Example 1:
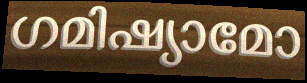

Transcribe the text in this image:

ഗമിഷ്യാമോ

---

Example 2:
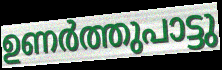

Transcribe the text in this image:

ഉണർത്തുപാട്ടു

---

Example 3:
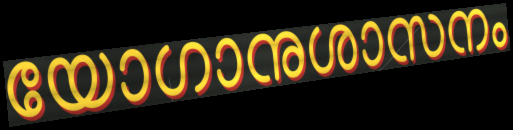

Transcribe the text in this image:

യോഗാനുശാസനം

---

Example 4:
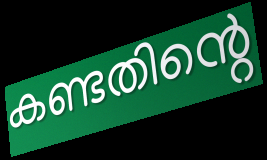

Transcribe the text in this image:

കണ്ടതിന്റെ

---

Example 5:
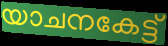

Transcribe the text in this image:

യാചനകേട്ട്